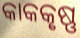
କାକକୃଷ୍ଣ